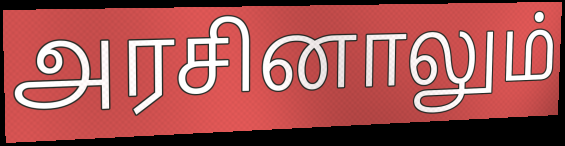
அரசினாலும்